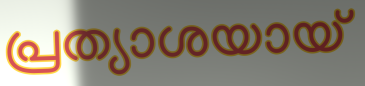
പ്രത്യാശയായ്